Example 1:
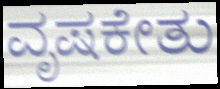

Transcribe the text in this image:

ವೃಷಕೇತು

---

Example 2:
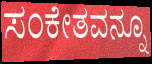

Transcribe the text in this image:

ಸಂಕೇತವನ್ನೂ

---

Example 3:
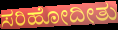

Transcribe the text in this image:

ಸರಿಹೋದೀತು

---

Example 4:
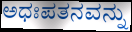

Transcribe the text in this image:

ಅಧಃಪತನವನ್ನು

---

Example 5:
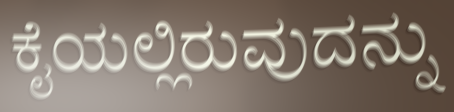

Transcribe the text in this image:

ಕೈಯಲ್ಲಿರುವುದನ್ನು